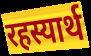
रहस्यार्थ